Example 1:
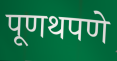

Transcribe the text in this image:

पूणथपणे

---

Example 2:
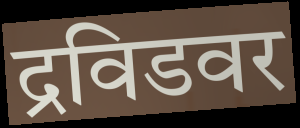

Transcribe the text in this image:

द्रविडवर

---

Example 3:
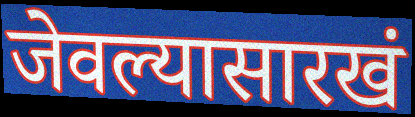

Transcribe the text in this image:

जेवल्यासारखं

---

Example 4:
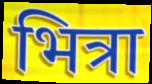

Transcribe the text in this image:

भित्रा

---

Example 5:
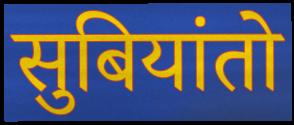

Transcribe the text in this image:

सुबियांतो